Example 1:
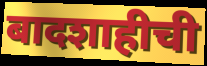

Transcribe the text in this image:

बादशाहीची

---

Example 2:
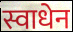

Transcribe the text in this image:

स्वाधेन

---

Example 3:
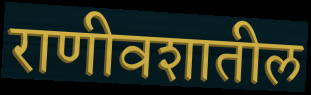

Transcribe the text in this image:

राणीवशातील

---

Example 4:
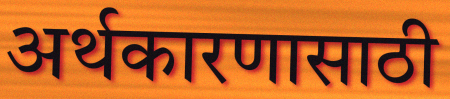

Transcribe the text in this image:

अर्थकारणासाठी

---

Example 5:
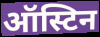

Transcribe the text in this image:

ऑस्टिन